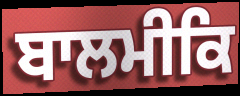
ਬਾਲਮੀਕਿ